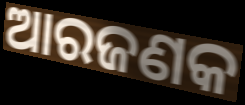
ଆରଜଣକ